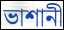
ভাশানী